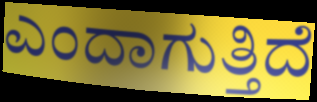
ಎಂದಾಗುತ್ತಿದೆ